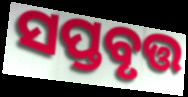
ସପ୍ତବୃତ୍ତ